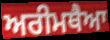
ਅਰੀਮਥੈਆ